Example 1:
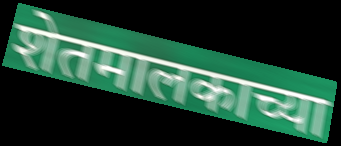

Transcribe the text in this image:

शेतमालकाच्या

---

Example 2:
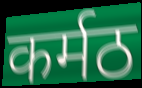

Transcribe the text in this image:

कर्मठ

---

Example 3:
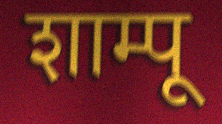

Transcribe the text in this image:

शाम्पू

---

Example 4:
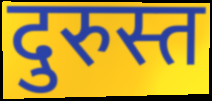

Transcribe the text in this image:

दुरुस्त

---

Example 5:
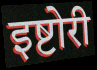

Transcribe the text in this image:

इष्टोरी